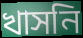
খাসনি